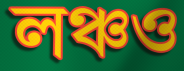
লঞ্চও